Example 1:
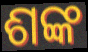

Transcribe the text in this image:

ଶଙ୍କ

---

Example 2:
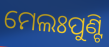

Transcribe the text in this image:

ମେଲଃପୁଣ୍ଟି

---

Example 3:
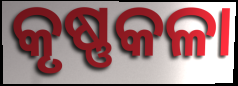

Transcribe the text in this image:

କୃଷ୍ଣକଳା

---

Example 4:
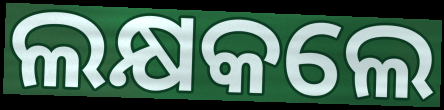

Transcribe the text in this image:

ଲକ୍ଷକଲେ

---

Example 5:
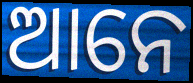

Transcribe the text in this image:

ଆନେ